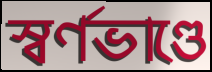
স্বর্ণভাণ্ডে